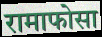
रामाफोसा